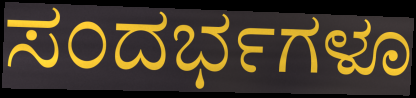
ಸಂದರ್ಭಗಳೂ